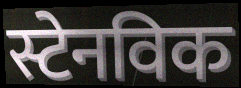
स्टेनविक